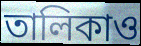
তালিকাও